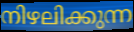
നിഴലിക്കുന്ന